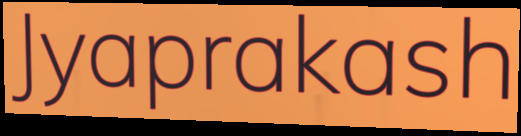
Jyaprakash